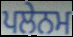
ਪਲੇਨਮ